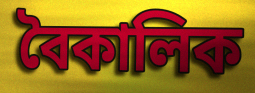
বৈকালিক